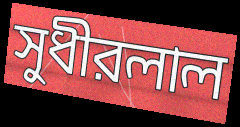
সুধীরলাল